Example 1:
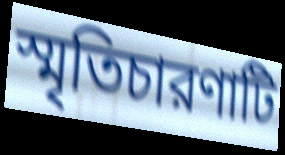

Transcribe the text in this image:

স্মৃতিচারণাটি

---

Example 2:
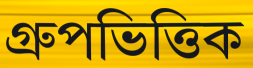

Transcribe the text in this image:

গ্রুপভিত্তিক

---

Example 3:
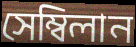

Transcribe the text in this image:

সেম্বিলান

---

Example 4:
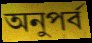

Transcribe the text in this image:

অনুপর্ব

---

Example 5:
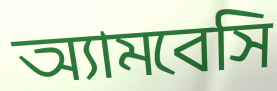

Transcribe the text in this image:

অ্যামবেসি